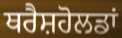
ਥਰੈਸ਼ਹੋਲਡਾਂ